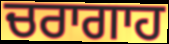
ਚਰਾਗਾਹ